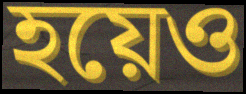
হয়েও